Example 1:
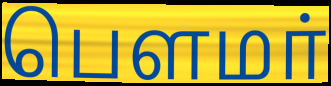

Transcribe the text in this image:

பௌமர்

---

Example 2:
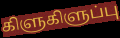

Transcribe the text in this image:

கிளுகிளுப்பு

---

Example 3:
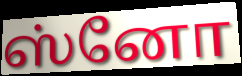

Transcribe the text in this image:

ஸ்னோ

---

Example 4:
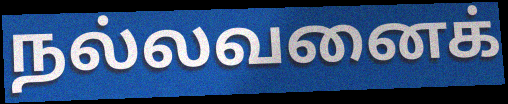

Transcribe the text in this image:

நல்லவனைக்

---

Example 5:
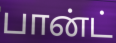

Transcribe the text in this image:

பான்ட்